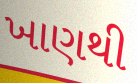
ખાણથી